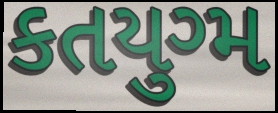
કતયુગ્મ